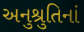
અનુશ્રુતિનાં